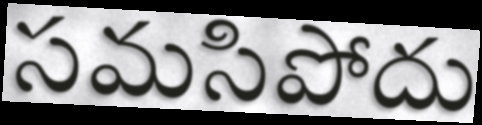
సమసిపోదు